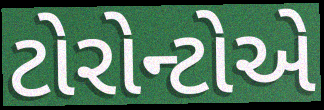
ટોરોન્ટોએ